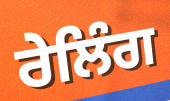
ਰੇਲਿੰਗ